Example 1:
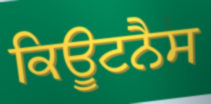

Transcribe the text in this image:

ਕਿਊਟਨੈਸ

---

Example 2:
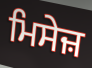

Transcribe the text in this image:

ਮਿਸੇਜ਼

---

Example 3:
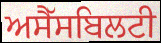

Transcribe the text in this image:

ਅਸੈੱਸਬਿਲਟੀ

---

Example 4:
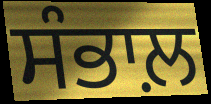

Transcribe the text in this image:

ਸੰਭਾਲ਼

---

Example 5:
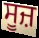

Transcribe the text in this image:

ਸੂਜ਼